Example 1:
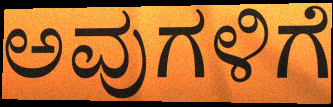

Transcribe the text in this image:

ಅವುಗಳಿಗೆ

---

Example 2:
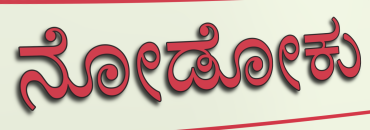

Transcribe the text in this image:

ನೋಡೋಕು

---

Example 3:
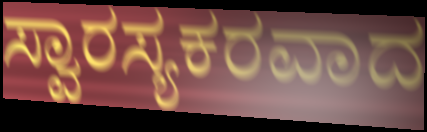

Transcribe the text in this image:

ಸ್ವಾರಸ್ಯಕರವಾದ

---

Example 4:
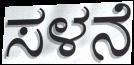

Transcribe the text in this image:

ಸಳನೆ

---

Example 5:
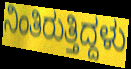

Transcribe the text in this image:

ನಿಂತಿರುತ್ತಿದ್ದಳು